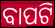
ବାପଟି